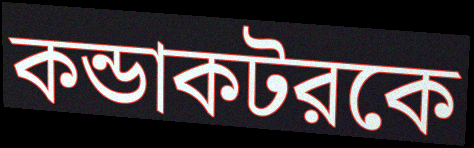
কন্ডাকটরকে